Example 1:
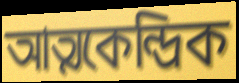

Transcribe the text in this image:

আত্মকেন্দ্রিক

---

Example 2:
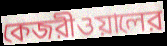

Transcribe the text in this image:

কেজরীওয়ালের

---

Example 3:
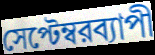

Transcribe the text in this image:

সেপ্টেম্বরব্যাপী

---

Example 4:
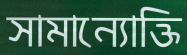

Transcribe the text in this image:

সামান্যোক্তি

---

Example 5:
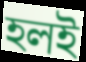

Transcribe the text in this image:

হলই